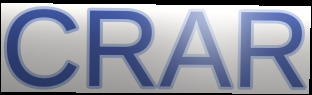
CRAR